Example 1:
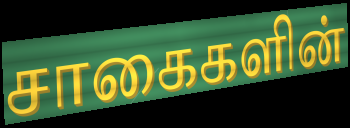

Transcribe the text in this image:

சாகைகளின்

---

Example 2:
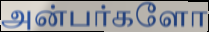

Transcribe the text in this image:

அன்பர்களோ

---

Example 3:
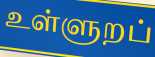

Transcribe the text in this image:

உள்ளுறப்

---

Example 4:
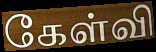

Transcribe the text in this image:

கேள்வி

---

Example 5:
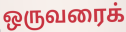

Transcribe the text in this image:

ஒருவரைக்